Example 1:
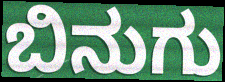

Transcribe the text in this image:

ಬಿನುಗು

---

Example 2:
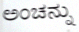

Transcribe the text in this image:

ಅಂಚನ್ನು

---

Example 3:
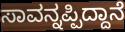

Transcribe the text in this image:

ಸಾವನ್ನಪ್ಪಿದ್ದಾನೆ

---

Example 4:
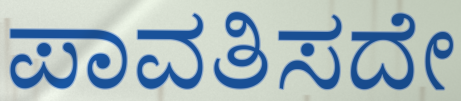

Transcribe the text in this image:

ಪಾವತಿಸದೇ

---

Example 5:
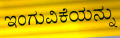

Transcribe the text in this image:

ಇಂಗುವಿಕೆಯನ್ನು